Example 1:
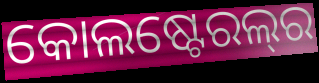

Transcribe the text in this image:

କୋଲଷ୍ଟେରଲ୍‌ର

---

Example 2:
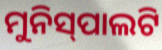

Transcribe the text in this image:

ମୁନିସ୍‍ପାଲଟି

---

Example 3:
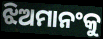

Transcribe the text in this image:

ଝିଅମାନଂକୁ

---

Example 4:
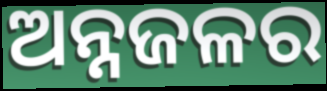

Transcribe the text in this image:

ଅନ୍ନଜଳର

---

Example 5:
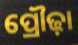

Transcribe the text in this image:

ପ୍ରୌଢ଼ା